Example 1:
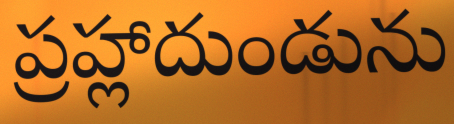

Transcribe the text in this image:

ప్రహ్లాదుండును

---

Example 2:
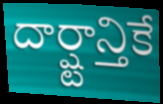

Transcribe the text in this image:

దార్ష్టాన్తికే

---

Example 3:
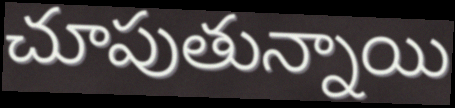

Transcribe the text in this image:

చూపుతున్నాయి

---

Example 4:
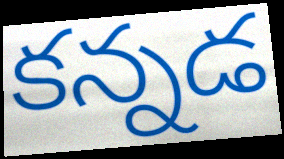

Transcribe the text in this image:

కన్నడ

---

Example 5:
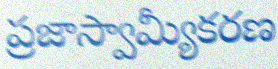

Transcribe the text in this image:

ప్రజాస్వామ్యీకరణ